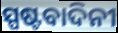
ସ୍ପଷ୍ଟବାଦିନୀ